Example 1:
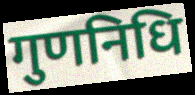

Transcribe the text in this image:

गुणनिधि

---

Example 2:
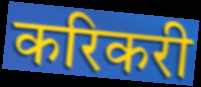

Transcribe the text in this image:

करिकरी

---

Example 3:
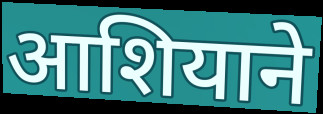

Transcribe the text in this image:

आशियाने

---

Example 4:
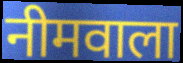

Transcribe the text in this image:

नीमवाला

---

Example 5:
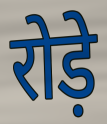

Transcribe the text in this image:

रोड़े